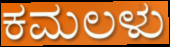
ಕಮಲಳು